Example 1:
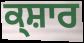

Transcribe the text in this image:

ਕ੍ਸ਼ਾਰ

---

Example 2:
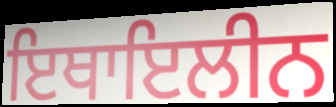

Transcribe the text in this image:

ਇਥਾਇਲੀਨ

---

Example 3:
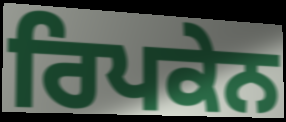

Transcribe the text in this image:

ਰਿਪਕੇਨ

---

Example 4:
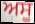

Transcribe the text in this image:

ਅਸੂ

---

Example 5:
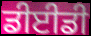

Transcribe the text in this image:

ਡੀਈਡੀ